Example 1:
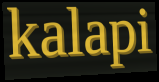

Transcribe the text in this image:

kalapi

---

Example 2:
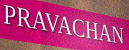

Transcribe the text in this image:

PRAVACHAN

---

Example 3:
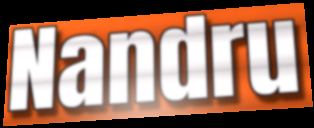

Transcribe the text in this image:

Nandru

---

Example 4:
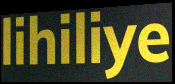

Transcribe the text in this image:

lihiliye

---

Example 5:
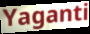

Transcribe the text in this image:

Yaganti